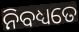
ନିବଧ୍ୟତେ